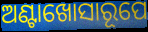
ଅଣ୍ଟାଖୋସାରୂପେ